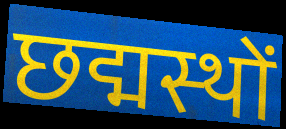
छद्मस्थों